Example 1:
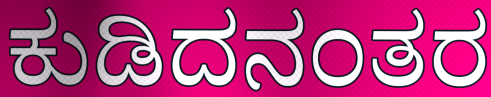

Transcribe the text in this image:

ಕುಡಿದನಂತರ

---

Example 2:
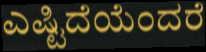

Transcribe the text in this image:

ಎಷ್ಟಿದೆಯೆಂದರೆ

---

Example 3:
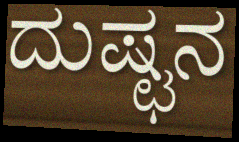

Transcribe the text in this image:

ದುಷ್ಟನ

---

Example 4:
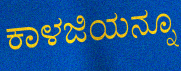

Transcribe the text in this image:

ಕಾಳಜಿಯನ್ನೂ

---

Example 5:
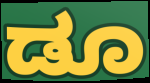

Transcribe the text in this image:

ಡೂ